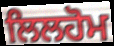
ਲਿਲਹੋਮ